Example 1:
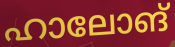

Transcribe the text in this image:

ഹാലോങ്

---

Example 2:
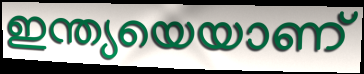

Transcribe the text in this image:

ഇന്ത്യയെയാണ്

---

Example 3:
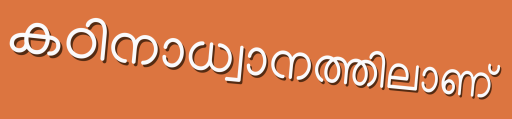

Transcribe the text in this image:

കഠിനാധ്വാനത്തിലാണ്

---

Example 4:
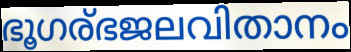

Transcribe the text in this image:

ഭൂഗര്ഭജലവിതാനം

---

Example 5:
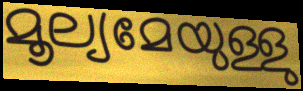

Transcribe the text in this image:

മൂല്യമേയുള്ളു